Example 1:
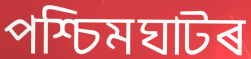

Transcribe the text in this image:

পশ্চিমঘাটৰ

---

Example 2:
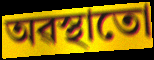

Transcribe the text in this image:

অৱস্থাতো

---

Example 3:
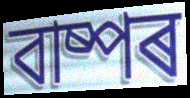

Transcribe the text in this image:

বাষ্পৰ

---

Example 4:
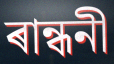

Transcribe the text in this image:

ৰান্ধনী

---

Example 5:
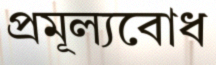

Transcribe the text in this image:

প্ৰমূল্যবোধ